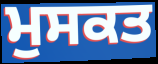
ਮੁਸਕਤ